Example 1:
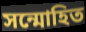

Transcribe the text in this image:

সন্মোহিত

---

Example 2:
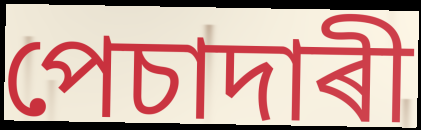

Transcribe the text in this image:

পেচাদাৰী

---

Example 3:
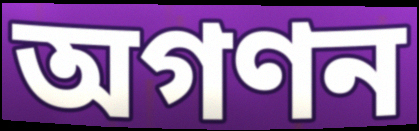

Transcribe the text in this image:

অগণন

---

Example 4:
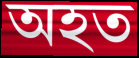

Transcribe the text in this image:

অহত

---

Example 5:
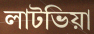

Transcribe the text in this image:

লাটভিয়া